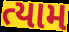
ત્યામ